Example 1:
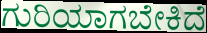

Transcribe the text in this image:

ಗುರಿಯಾಗಬೇಕಿದೆ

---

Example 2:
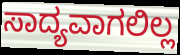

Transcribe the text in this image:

ಸಾದ್ಯವಾಗಲಿಲ್ಲ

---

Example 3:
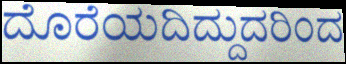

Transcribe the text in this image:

ದೊರೆಯದಿದ್ದುದರಿಂದ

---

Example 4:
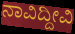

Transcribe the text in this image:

ನಾವಿದ್ದೀವಿ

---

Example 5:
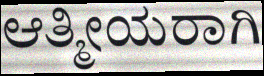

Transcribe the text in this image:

ಆತ್ಮೀಯರಾಗಿ